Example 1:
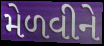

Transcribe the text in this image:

મેળવીને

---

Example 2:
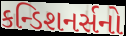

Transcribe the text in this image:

કન્ડિશનર્સનો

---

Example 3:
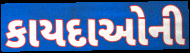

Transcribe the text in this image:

કાયદાઓની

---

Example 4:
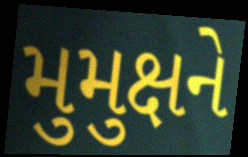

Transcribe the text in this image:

મુમુક્ષને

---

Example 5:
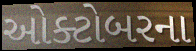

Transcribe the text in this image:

ઓક્ટોબરના